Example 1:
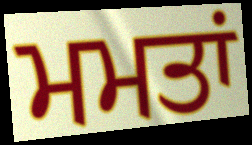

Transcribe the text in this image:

ਮਮਤਾਂ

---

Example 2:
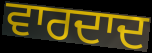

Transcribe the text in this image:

ਵਾਰਦਾਦ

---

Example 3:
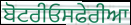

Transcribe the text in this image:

ਬੋਟਰੀਓਸਫੇਰੀਆ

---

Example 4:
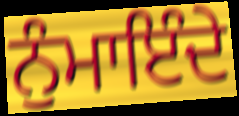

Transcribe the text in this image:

ਨੁੰਮਾਇੰਦੇ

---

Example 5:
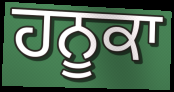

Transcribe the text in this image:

ਹਨੂਕਾ